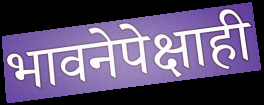
भावनेपेक्षाही